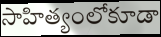
సాహిత్యంలోకూడా